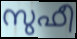
സുഫീ